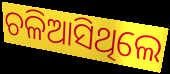
ଚଳିଆସିଥିଲେ